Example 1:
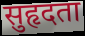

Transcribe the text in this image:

सुहृदता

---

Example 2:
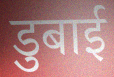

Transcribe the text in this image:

डुबाई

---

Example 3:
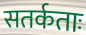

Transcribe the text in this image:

सतर्कताः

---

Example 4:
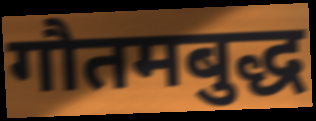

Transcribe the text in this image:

गौतमबुद्ध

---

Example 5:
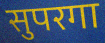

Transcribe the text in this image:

सुपरगा